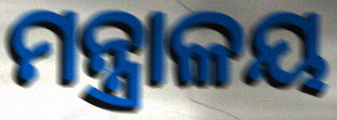
ମନ୍ତ୍ରାଳୟ